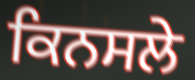
ਕਿਨਸਲੇ